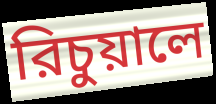
রিচুয়ালে